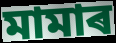
মামাৰ